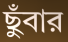
ছুঁবার